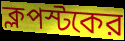
ক্লপস্টকের